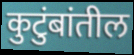
कुटुंबांतील